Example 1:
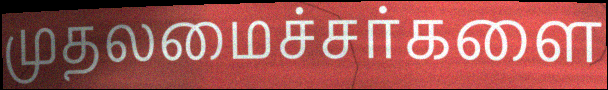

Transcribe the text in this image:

முதலமைச்சர்களை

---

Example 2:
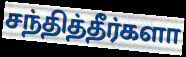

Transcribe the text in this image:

சந்தித்தீர்களா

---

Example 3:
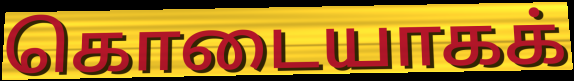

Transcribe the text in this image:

கொடையாகக்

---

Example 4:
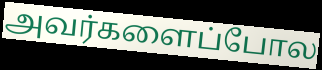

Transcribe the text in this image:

அவர்களைப்போல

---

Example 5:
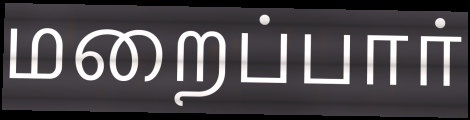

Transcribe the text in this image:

மறைப்பார்